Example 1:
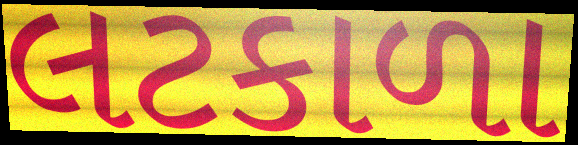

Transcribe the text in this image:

લટકાળા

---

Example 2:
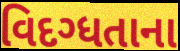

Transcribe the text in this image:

વિદગ્ધતાના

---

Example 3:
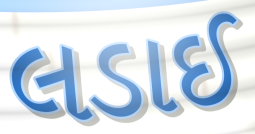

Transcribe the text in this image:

લડાઈ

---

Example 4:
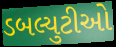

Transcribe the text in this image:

ડબલ્યુટીઓ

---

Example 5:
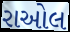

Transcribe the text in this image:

રાઓલ